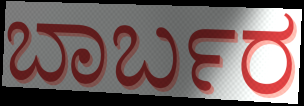
ಬಾರ್ಬರ